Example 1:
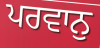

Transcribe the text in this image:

ਪਰਵਾਨੁ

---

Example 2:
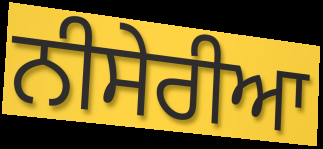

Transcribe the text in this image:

ਨੀਸੇਰੀਆ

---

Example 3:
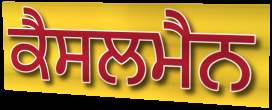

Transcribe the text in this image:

ਕੈਸਲਮੈਨ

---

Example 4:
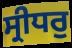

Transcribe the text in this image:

ਸ੍ਰੀਧਰੁ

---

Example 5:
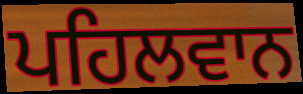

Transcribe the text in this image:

ਪਹਿਲਵਾਨ